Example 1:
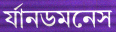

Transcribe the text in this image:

র্যানডমনেস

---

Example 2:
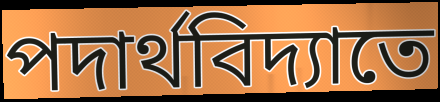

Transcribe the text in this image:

পদার্থবিদ্যাতে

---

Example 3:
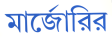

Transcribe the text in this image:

মার্জোরির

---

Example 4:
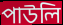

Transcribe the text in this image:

পাউলি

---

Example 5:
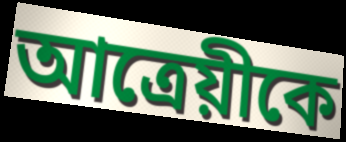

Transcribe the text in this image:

আত্রেয়ীকে